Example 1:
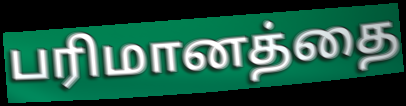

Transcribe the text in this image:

பரிமானத்தை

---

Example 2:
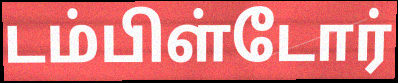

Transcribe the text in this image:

டம்பிள்டோர்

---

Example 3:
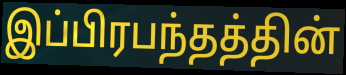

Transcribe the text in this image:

இப்பிரபந்தத்தின்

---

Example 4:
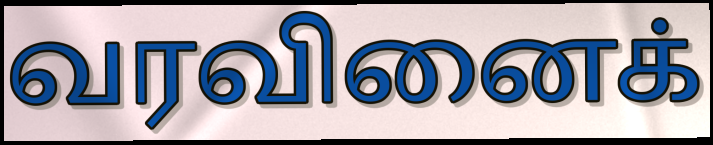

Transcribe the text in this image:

வரவினைக்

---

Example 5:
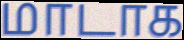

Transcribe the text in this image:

மாடாக